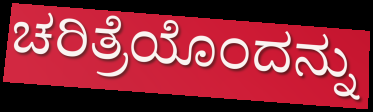
ಚರಿತ್ರೆಯೊಂದನ್ನು